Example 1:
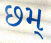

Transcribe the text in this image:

છમ્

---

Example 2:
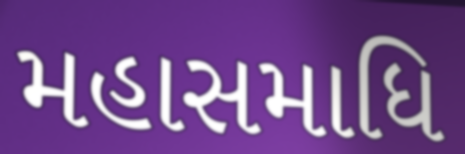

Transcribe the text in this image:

મહાસમાધિ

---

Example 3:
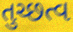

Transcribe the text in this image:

તુચ્છત્વ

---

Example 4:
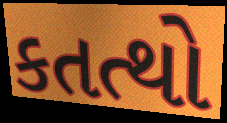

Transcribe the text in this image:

કતત્થો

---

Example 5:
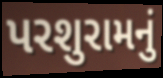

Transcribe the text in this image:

પરશુરામનું